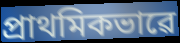
প্ৰাথমিকভাৱে